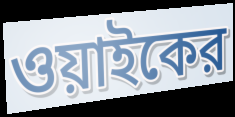
ওয়াইকের